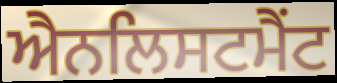
ਐਨਲਿਸਟਮੈਂਟ